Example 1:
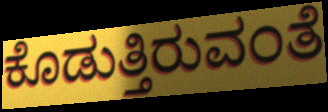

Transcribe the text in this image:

ಕೊಡುತ್ತಿರುವಂತೆ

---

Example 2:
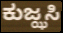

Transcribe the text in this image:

ಕುಜ್ಝಸಿ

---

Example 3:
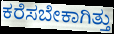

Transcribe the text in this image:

ಕರೆಸಬೇಕಾಗಿತ್ತು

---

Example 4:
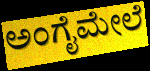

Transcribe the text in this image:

ಅಂಗೈಮೇಲೆ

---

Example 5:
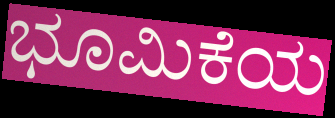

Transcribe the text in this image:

ಭೂಮಿಕೆಯ